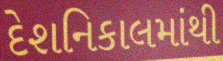
દેશનિકાલમાંથી